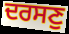
ਦਰਸਣੁ